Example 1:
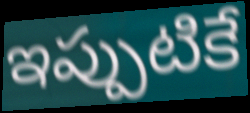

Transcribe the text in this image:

ఇప్పుటికే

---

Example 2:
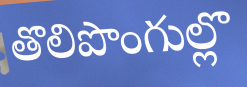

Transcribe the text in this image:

తొలిపొంగుల్లొ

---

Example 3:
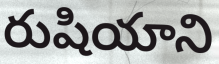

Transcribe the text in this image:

రుషియాని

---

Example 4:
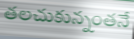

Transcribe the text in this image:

తలచుకున్నంతనే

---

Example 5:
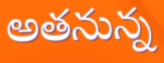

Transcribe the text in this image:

అతనున్న